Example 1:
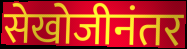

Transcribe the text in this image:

सेखोजीनंतर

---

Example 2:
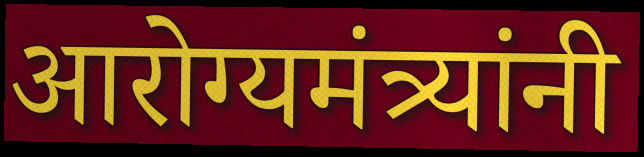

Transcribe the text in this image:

आरोग्यमंत्र्यांनी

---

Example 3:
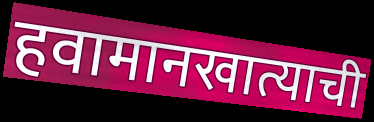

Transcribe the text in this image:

हवामानखात्याची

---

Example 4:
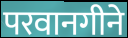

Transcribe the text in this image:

परवानगीने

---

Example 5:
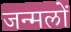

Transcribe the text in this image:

जन्मलों